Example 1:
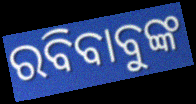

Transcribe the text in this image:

ରବିବାବୁଙ୍କ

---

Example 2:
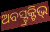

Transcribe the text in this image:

ଅବସ୍ଟ୍ରକ୍ଟିଭ୍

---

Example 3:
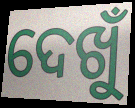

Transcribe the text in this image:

ଦେଖୁଁ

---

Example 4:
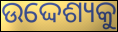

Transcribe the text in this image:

ଉଦ୍ଦେଶ୍ୟକୁ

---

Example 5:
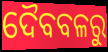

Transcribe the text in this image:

ଦୈବବଳରୁ